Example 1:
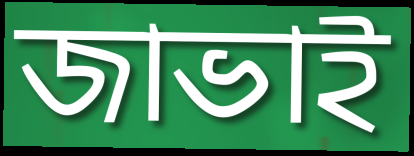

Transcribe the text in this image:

জাভাই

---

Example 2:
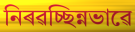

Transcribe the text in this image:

নিৰৱচ্ছিন্নভাৱে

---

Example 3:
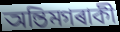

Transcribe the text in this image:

অন্তিমগৰাকী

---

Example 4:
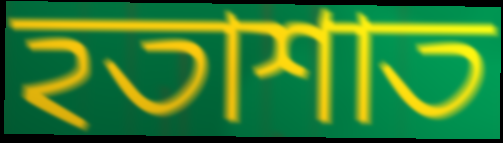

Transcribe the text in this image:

হতাশাত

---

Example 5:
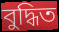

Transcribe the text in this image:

বুদ্ধিত